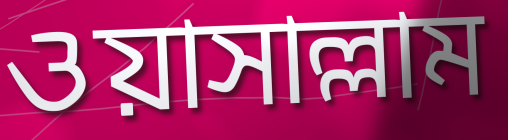
ওয়াসাল্লাম